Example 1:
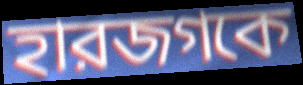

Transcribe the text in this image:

হারজগকে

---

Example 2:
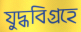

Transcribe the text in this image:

যুদ্ধবিগ্রহে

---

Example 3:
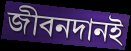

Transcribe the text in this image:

জীবনদানই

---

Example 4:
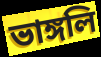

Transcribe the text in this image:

ভাঙ্গলি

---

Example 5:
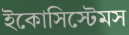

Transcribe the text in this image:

ইকোসিস্টেমস